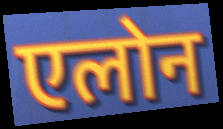
एलोन